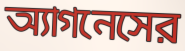
অ্যাগনেসের